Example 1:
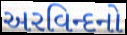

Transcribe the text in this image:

અરવિન્દનો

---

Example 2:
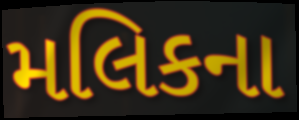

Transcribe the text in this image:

મલિકના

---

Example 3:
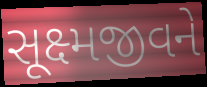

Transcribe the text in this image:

સૂક્ષ્મજીવને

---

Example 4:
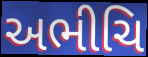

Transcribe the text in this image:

અભીચિ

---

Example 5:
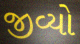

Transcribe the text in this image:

જીવ્યો